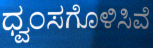
ಧ್ವಂಸಗೊಳಿಸಿವೆ